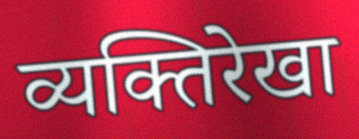
व्यक्तिरेखा